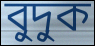
বুদুক